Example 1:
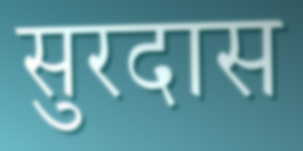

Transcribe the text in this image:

सुरदास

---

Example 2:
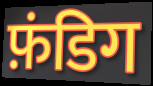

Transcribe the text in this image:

फ़ंडिग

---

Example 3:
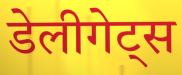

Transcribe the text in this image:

डेलीगेट्स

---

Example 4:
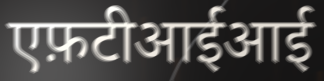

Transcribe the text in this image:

एफ़टीआईआई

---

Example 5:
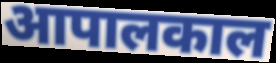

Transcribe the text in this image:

आपालकाल